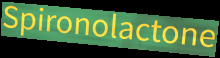
Spironolactone